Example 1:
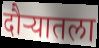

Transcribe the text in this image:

दौऱ्यातला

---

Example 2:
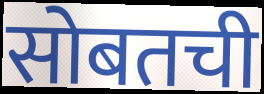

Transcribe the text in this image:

सोबतची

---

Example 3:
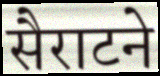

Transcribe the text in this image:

सैराटने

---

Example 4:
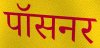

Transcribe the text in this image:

पॉसनर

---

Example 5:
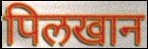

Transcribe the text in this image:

पिलखान